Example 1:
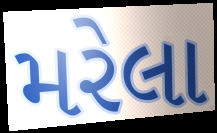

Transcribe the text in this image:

મરેલા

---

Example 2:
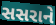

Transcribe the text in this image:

સસરાને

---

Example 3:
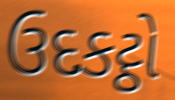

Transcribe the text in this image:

ઉદકટ્ઠો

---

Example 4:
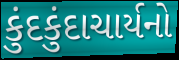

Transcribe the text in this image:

કુંદકુંદાચાર્યનો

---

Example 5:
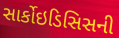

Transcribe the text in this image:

સાર્કોઇડિસિસની